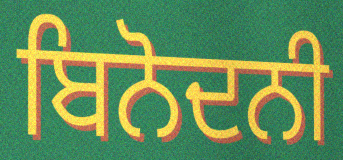
ਬਿਨੋਦਨੀ